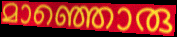
മാഞ്ഞൊരു